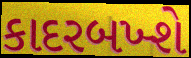
કાદરબખ્શે